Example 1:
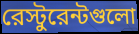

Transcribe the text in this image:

রেস্টুরেন্টগুলো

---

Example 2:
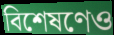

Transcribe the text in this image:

বিশেষণেও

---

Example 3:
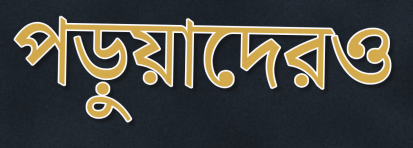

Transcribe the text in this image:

পড়ুয়াদেরও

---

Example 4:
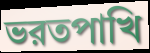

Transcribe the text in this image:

ভরতপাখি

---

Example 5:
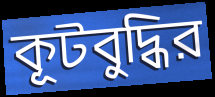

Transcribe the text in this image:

কূটবুদ্ধির